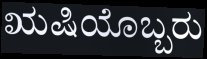
ಋಷಿಯೊಬ್ಬರು